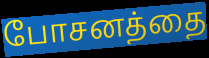
போசனத்தை